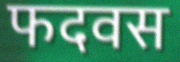
फदवस